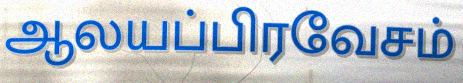
ஆலயப்பிரவேசம்